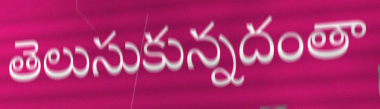
తెలుసుకున్నదంతా